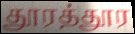
தூரத்தூர